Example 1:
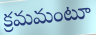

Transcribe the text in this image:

క్రమమంటూ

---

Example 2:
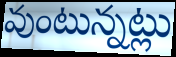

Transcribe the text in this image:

వుంటున్నట్లు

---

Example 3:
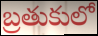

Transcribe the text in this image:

బ్రతుకులో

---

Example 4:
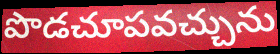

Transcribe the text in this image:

పొడచూపవచ్చును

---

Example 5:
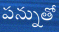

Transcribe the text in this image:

పన్నుతో